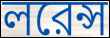
লরেন্স